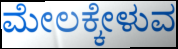
ಮೇಲಕ್ಕೇಳುವ